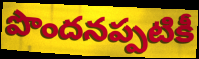
పొందనప్పటికీ